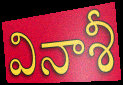
వినాశీ